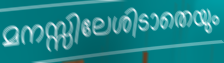
മനസ്സിലേശിടാതെയും